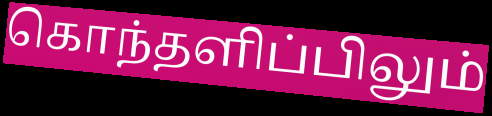
கொந்தளிப்பிலும்